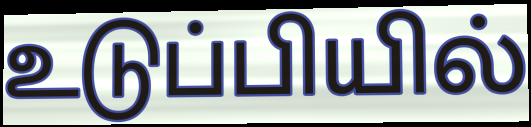
உடுப்பியில்